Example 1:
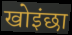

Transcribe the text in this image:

खोइंछा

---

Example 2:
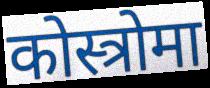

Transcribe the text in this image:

कोस्त्रोमा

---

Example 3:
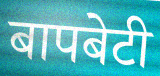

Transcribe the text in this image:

बापबेटी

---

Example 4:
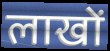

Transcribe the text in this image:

लाखों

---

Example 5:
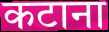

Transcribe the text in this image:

कटाना